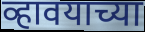
व्हावयाच्या